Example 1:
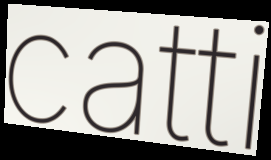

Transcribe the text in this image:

catti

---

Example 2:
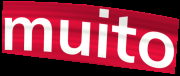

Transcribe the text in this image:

muito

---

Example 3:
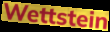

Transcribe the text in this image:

Wettstein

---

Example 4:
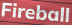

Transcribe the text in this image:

Fireball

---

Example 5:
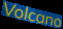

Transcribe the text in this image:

Volcano